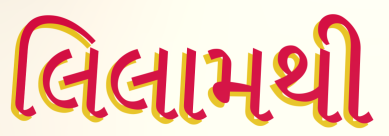
લિલામથી